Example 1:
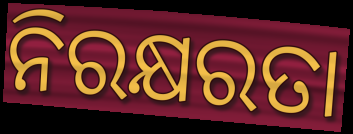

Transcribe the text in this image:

ନିରକ୍ଷରତା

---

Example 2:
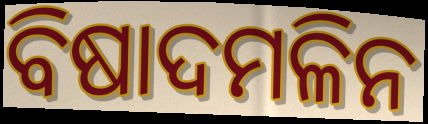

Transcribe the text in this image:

ବିଷାଦମଳିନ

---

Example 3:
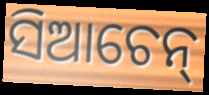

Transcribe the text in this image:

ସିଆଚେନ୍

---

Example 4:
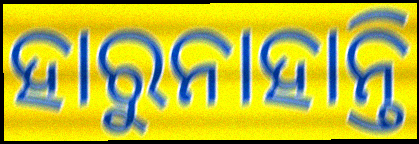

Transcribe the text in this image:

ହାରୁନାହାନ୍ତି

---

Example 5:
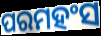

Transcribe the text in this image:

ପରମହଂସ